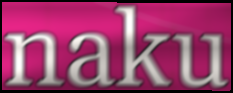
naku